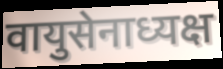
वायुसेनाध्यक्ष